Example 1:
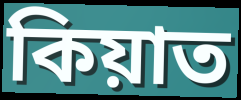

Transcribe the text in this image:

কিয়াত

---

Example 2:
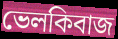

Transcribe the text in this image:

ভেলকিবাজ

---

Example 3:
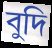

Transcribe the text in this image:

বুদি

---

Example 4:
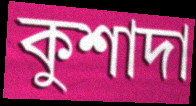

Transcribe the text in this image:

কুশাদা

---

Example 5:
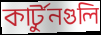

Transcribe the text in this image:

কার্টুনগুলি